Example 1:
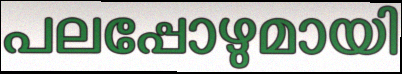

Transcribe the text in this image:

പലപ്പോഴുമായി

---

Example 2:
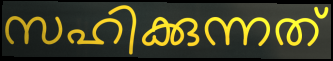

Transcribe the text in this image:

സഹിക്കുന്നത്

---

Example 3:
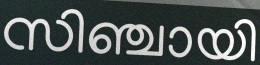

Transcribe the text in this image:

സിഞ്ചായി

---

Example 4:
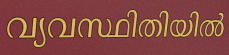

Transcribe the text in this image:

വ്യവസ്ഥിതിയിൽ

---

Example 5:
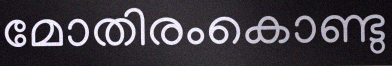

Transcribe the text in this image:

മോതിരംകൊണ്ടു